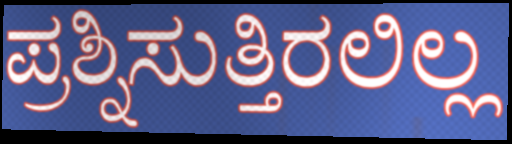
ಪ್ರಶ್ನಿಸುತ್ತಿರಲಿಲ್ಲ